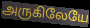
அருகிலேயே